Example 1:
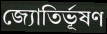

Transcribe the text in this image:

জ্যোতির্ভূষণ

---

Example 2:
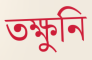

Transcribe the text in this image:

তক্ষুনি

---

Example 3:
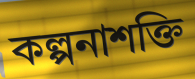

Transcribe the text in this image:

কল্পনাশক্তি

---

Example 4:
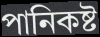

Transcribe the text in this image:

পানিকষ্ট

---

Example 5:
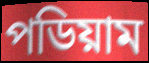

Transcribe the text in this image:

পডিয়াম